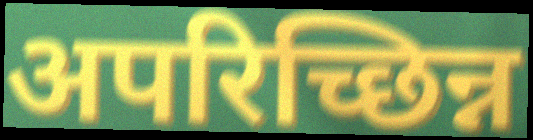
अपरिच्छिन्न